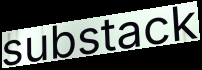
substack